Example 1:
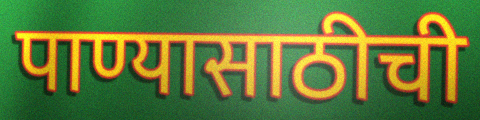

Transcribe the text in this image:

पाण्यासाठीची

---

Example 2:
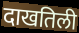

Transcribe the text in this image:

दाखतिली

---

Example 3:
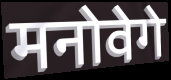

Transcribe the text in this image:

मनोवेगे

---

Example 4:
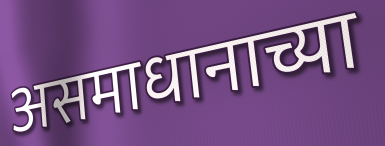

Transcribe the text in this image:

असमाधानाच्या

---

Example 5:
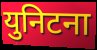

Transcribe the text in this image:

युनिटना